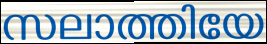
സലാത്തിയേ